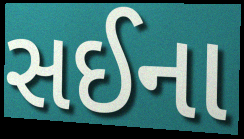
સઈના